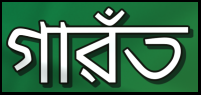
গাৱঁত